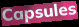
Capsules